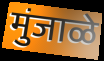
मुंजाळे